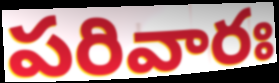
పరివారః